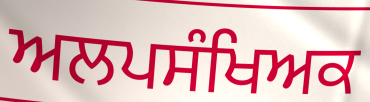
ਅਲਪਸੰਖਿਅਕ